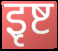
इृष्ट